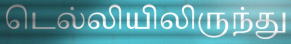
டெல்லியிலிருந்து